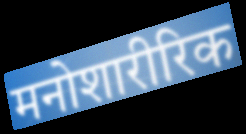
मनोशारीरिक